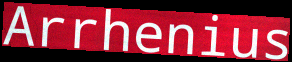
Arrhenius